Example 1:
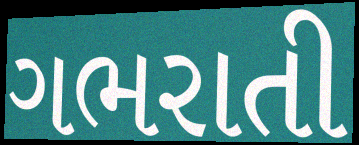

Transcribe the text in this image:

ગભરાતી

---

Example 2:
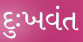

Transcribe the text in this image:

દુઃખવંત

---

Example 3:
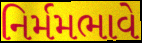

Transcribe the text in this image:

નિર્મમભાવે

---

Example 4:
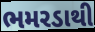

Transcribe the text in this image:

ભમરડાથી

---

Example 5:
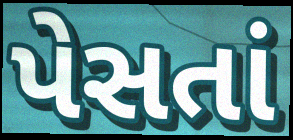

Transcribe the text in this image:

પેસતાં